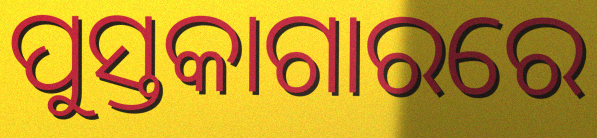
ପୁସ୍ତକାଗାରରେ